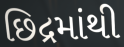
છિદ્રમાંથી